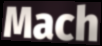
Mach